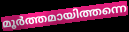
മൂർത്തമായിത്തന്നെ